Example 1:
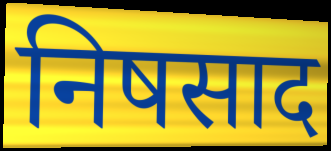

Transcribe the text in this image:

निषसाद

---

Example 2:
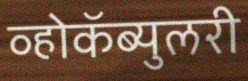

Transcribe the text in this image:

व्होकॅब्युलरी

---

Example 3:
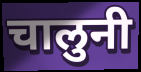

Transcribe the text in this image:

चालुनी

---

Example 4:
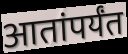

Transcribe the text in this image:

आतांपर्यंत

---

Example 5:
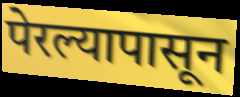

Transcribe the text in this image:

पेरल्यापासून